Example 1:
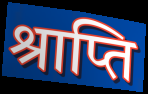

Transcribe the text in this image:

श्राप्ति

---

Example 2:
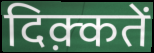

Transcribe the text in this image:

दिक़्कतें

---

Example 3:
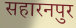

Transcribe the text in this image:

सहारनपुर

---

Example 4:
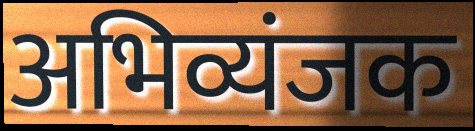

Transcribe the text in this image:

अभिव्यंजक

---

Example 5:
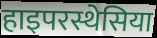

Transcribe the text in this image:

हाइपरस्थेसिया